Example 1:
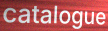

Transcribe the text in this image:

catalogue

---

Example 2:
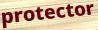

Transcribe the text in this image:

protector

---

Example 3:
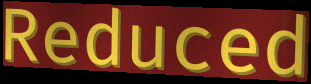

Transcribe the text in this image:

Reduced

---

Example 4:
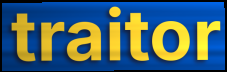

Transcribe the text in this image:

traitor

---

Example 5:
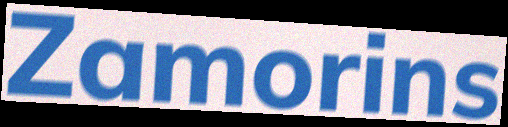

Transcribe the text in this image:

Zamorins